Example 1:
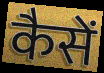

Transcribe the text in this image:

कैसें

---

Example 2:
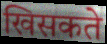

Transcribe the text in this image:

खिसकते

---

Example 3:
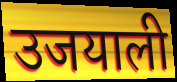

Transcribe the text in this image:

उजयाली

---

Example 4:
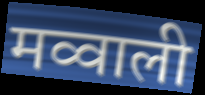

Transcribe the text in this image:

मव्वाली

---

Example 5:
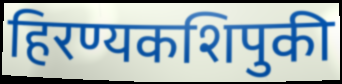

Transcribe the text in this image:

हिरण्यकशिपुकी